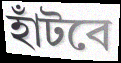
হাঁটবে